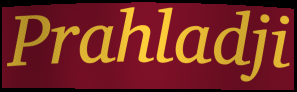
Prahladji